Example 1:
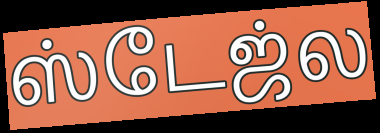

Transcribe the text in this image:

ஸ்டேஜ்ல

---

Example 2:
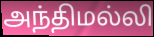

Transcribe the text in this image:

அந்திமல்லி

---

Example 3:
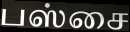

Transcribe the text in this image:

பஸ்சை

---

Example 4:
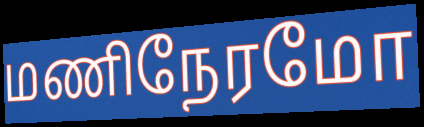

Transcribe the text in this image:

மணிநேரமோ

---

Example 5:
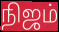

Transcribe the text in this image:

நிஜம்